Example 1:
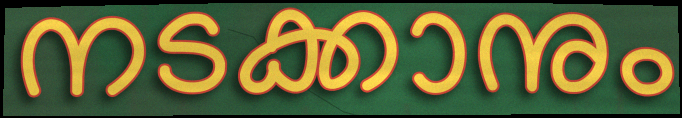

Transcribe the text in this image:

നടക്കാനും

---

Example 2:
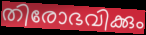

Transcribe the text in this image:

തിരോഭവിക്കും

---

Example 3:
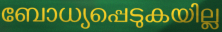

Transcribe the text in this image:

ബോധ്യപ്പെടുകയില്ല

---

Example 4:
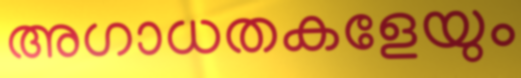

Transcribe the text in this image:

അഗാധതകളേയും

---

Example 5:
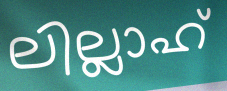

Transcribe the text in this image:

ലില്ലാഹ്